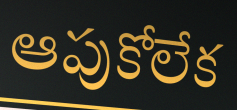
ఆపుకోలేక